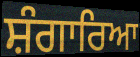
ਸ਼ੰਗਾਰਿਆ